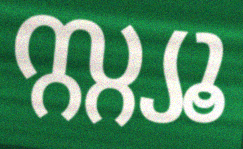
സ്റ്റ്യൂ